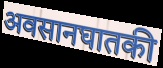
अवसानघातकी